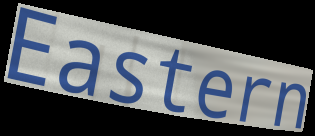
Eastern